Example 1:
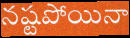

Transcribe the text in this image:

నష్టపోయినా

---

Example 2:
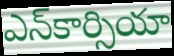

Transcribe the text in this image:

ఎన్‌కార్సియా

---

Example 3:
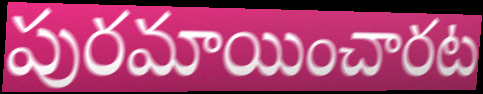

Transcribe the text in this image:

పురమాయించారట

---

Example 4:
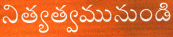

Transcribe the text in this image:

నిత్యత్వమునుండి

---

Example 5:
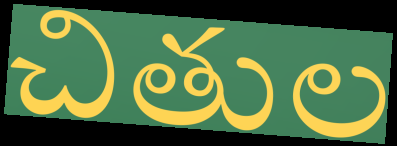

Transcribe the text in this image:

చితుల